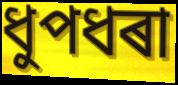
ধুপধৰা